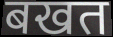
बखत